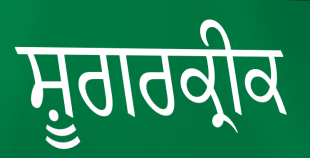
ਸ਼ੂਗਰਕ੍ਰੀਕ